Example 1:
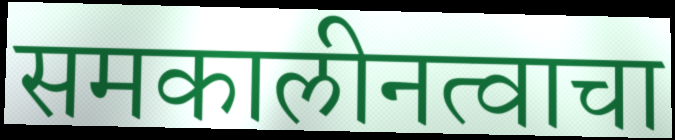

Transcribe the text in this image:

समकालीनत्वाचा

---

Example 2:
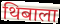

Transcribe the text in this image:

थिबाला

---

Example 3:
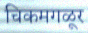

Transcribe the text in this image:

चिकमगळूर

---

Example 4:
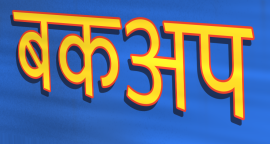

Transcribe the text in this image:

बकअप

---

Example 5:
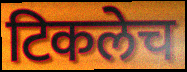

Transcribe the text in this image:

टिकलेच